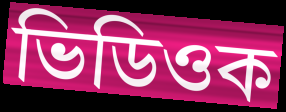
ভিডিওক